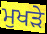
ਮੁਖੜੇ